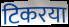
टिकरया